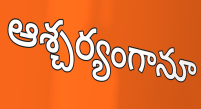
ఆశ్చర్యంగానూ